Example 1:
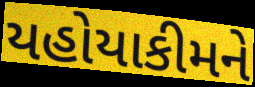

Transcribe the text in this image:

યહોયાકીમને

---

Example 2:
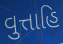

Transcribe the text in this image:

વુત્તાહિ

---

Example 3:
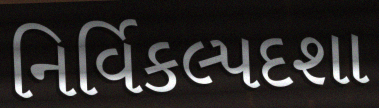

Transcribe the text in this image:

નિર્વિકલ્પદશા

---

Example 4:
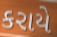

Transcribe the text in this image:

કરાયે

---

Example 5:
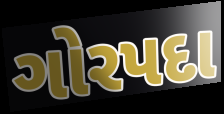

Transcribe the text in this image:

ગોરપદા